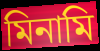
মিনামি